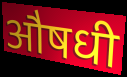
औषधी